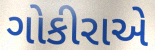
ગોકીરાએ